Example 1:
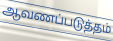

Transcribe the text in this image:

ஆவணப்படுத்தம்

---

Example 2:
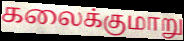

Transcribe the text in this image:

கலைக்குமாறு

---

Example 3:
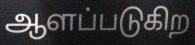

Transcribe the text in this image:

ஆளப்படுகிற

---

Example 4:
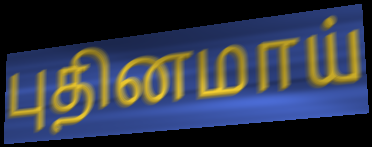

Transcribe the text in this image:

புதினமாய்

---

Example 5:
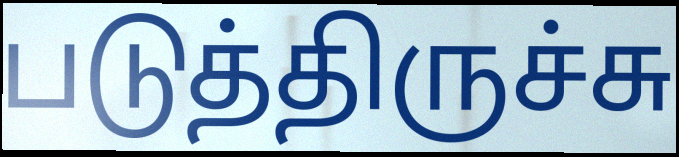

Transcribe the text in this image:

படுத்திருச்சு